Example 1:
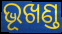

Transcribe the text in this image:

ଭୂଖଣ୍ଡ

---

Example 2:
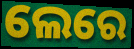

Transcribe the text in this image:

ଲେରେ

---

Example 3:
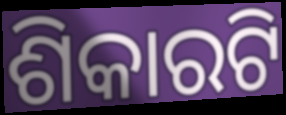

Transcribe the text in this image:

ଶିକାରଟି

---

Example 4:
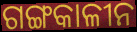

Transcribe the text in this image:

ଗଙ୍ଗକାଳୀନ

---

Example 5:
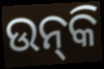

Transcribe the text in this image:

ଉନ୍‌କି